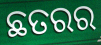
ଛତରର